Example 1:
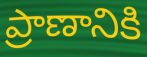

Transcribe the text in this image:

ప్రాణానికి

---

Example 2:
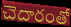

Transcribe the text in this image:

చెదారంతో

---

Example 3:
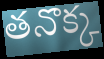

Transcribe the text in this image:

తనొక్క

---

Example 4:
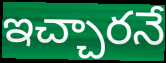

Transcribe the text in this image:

ఇచ్చారనే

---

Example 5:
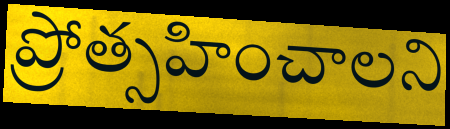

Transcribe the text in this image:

ప్రోత్సహించాలని